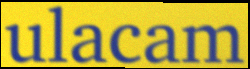
ulacam